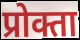
प्रोक्ता